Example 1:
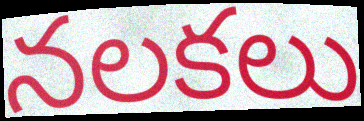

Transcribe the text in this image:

నలకలు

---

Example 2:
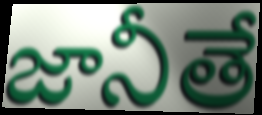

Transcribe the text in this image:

జానీతే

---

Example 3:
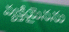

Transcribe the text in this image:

వ్యక్తియైనను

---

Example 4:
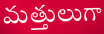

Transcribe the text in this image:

మత్తులుగా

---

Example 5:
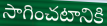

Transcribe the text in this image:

సాగించటానికి